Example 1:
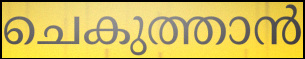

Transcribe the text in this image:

ചെകുത്താൻ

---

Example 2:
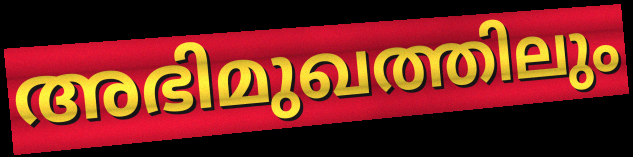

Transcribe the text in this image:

അഭിമുഖത്തിലും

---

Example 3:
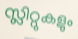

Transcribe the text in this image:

സ്ലിറ്റുകളും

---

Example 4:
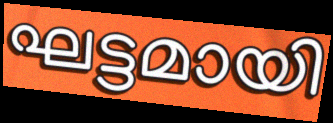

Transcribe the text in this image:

ഘട്ടമായി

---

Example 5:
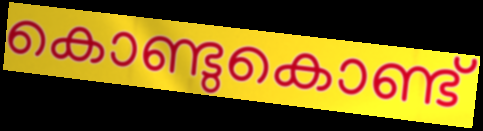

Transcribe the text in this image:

കൊണ്ടുകൊണ്ട്